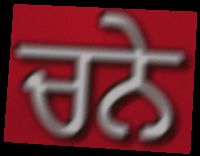
ਚਨੇ